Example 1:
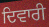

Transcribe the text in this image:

ਦਿਵਾਰੀ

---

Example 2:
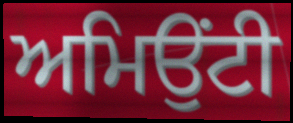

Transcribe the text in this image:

ਅਮਿਉਂਟੀ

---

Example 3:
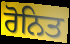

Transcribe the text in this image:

ਰੋਨਿਤ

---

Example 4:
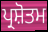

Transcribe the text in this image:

ਪ੍ਰਸ਼ੋਤਮ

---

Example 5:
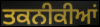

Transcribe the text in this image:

ਤਕਨੀਕੀਆਂ